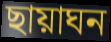
ছায়াঘন